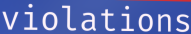
violations